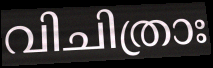
വിചിത്രാഃ